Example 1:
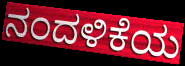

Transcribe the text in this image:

ನಂದಳಿಕೆಯ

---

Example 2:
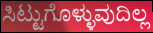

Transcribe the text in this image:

ಸಿಟ್ಟುಗೊಳ್ಳುವುದಿಲ್ಲ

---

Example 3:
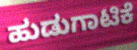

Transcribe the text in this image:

ಹುಡುಗಾಟಿಕೆ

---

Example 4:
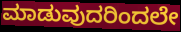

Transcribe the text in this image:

ಮಾಡುವುದರಿಂದಲೇ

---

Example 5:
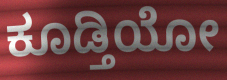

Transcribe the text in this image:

ಕೂಡ್ತಿಯೋ